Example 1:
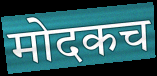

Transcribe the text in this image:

मोदकच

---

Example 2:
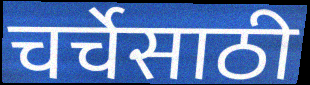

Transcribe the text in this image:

चर्चेसाठी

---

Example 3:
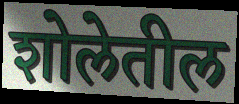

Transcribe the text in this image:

शोलेतील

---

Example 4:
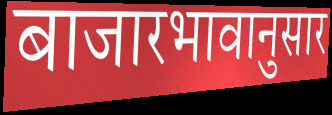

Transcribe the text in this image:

बाजारभावानुसार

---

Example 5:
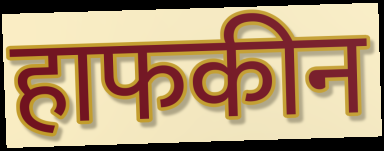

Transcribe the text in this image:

हाफकीन